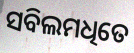
ସବିଲମଧିତେ